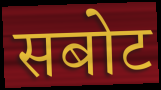
सबोट